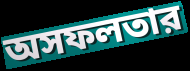
অসফলতার